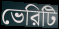
ভেরিটি